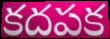
కదపక